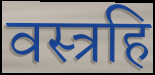
वस्त्रहि